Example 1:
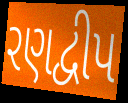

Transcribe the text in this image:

રણદ્વીપ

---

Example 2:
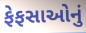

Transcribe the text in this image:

ફેફસાઓનું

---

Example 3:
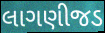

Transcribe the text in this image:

લાગણીજડ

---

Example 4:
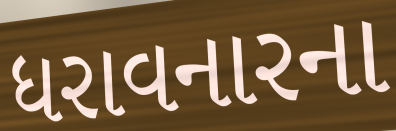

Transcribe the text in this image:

ધરાવનારના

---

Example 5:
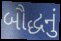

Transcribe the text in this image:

બૌદ્ધનું